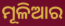
ମୂଳିଆର